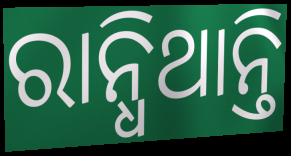
ରାନ୍ଧିଥାନ୍ତି